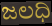
ಜಲಧಿ